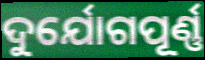
ଦୁର୍ଯୋଗପୂର୍ଣ୍ଣ